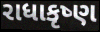
રાધાકૃષ્ણ